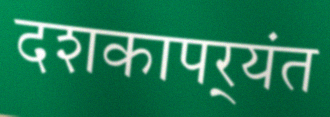
दशकापर्यंत